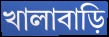
খালাবাড়ি